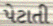
પેટાતી